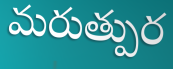
మరుత్పుర